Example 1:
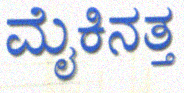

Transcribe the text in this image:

ಮೈಕಿನತ್ತ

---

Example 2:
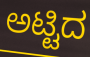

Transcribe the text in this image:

ಅಟ್ಟಿದ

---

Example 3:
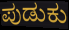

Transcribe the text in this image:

ಪುಡುಕು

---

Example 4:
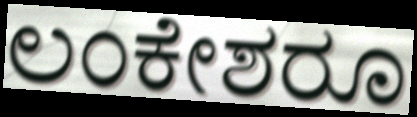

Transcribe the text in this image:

ಲಂಕೇಶರೂ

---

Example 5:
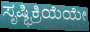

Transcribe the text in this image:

ಸೃಷ್ಟಿಕ್ರಿಯೆಯೇ